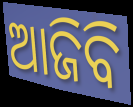
ଆଜିବି